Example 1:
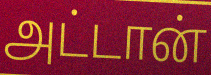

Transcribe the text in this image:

அட்டான்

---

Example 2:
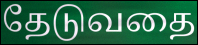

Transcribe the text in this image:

தேடுவதை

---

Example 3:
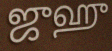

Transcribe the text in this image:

ஜுஹு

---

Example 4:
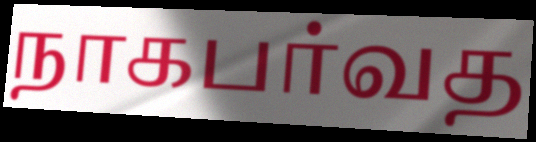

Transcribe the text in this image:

நாகபர்வத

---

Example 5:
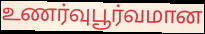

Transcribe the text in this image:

உணர்வுபூர்வமான